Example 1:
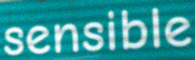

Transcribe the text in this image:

sensible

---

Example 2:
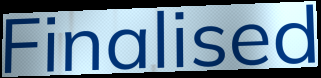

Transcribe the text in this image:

Finalised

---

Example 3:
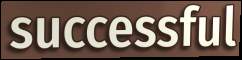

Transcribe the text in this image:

successful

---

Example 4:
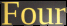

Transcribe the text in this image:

Four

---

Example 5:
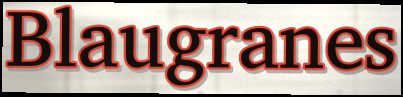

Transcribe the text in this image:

Blaugranes